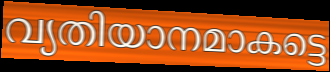
വ്യതിയാനമാകട്ടെ